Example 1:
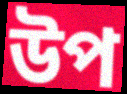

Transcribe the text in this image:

উপ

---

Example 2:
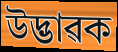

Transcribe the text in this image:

উদ্ভাৱক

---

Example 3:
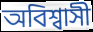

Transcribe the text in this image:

অবিশ্বাসী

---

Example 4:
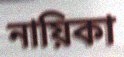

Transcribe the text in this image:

নায়িকা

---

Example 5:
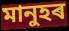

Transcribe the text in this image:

মানুহৰ